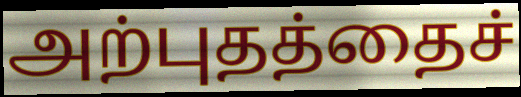
அற்புதத்தைச்